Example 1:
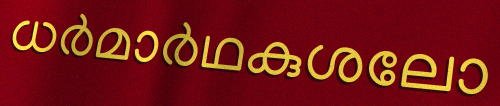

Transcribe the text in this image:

ധർമാർഥകുശലോ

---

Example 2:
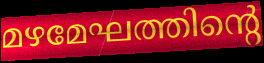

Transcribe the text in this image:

മഴമേഘത്തിന്റെ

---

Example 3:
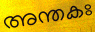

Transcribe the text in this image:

അന്തകഃ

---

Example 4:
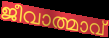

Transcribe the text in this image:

ജീവാത്മാവ്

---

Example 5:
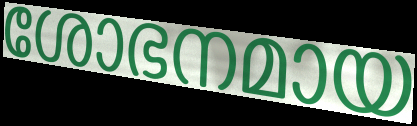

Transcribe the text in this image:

ശോഭനമായ